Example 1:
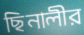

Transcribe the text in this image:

ছিনালীর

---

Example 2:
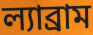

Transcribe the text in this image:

ল্যাব্রাম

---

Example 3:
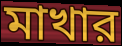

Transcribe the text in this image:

মাখার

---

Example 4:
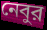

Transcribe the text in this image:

নেবুর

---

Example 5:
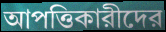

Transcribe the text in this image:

আপত্তিকারীদের